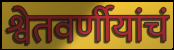
श्वेतवर्णीयांचं